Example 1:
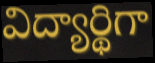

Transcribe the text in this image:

విద్యార్థిగా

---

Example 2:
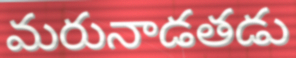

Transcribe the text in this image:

మరునాడతడు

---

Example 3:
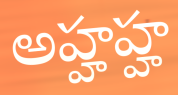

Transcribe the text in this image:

అహ్హహ్హ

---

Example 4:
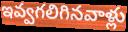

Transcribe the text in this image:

ఇవ్వగలిగినవాళ్లు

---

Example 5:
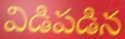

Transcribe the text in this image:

విడిపడిన